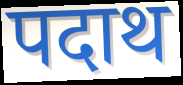
पदाथ